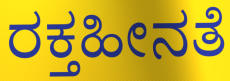
ರಕ್ತಹೀನತೆ